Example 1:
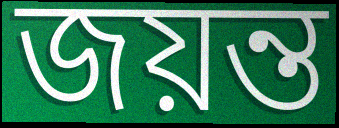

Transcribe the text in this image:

জয়ন্ত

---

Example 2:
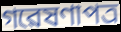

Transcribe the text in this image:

গৱেষণাপত্ৰ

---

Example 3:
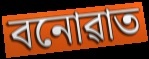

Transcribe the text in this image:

বনোৱাত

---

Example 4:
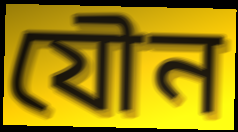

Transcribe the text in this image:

যৌন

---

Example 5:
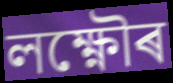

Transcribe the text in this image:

লক্ষ্ণৌৰ